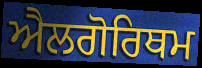
ਐਲਗੋਰਿਥਮ